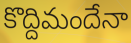
కొద్దిమందేనా